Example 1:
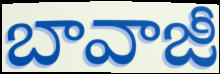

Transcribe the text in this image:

బావాజీ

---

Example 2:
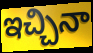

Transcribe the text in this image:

ఇచ్చినా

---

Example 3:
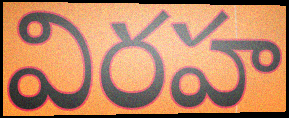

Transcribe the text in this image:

విరహ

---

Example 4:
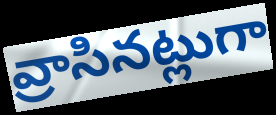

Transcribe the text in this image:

వ్రాసినట్లుగా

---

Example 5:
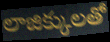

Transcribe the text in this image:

లాజిక్కులతో